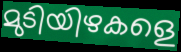
മുടിയിഴകളെ